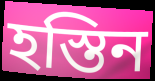
হস্তিন